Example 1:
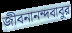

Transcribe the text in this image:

জীবনানন্দবাবুর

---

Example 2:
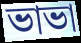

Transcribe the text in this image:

ভাভা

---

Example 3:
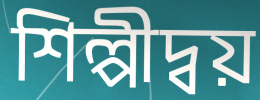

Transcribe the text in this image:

শিল্পীদ্বয়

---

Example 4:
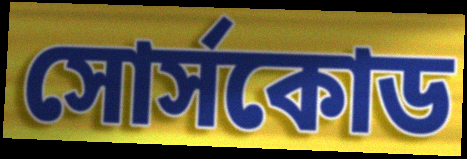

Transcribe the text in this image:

সোর্সকোড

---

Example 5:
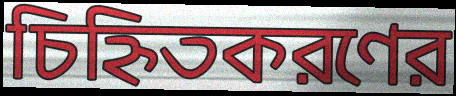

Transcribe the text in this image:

চিহ্নিতকরণের